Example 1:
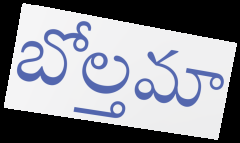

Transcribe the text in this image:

బోల్తమా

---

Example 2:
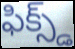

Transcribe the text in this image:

ఫిక్స్డ్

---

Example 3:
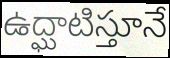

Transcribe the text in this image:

ఉద్ఘాటిస్తూనే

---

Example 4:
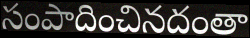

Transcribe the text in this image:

సంపాదించినదంతా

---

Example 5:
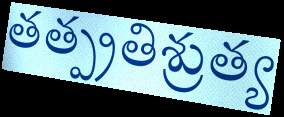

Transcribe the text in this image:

తత్ప్రతిశ్రుత్య